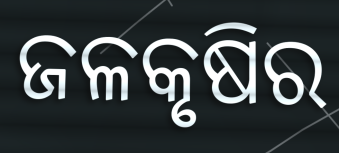
ଜଳକୃଷିର